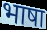
भाषा